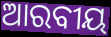
ଆରବୀୟ